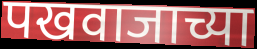
पखवाजाच्या